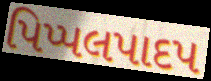
પિપ્પલપાદપ